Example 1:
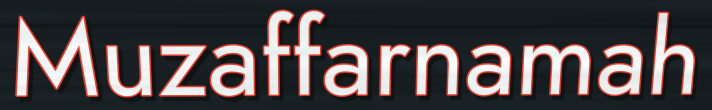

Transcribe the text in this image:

Muzaffarnamah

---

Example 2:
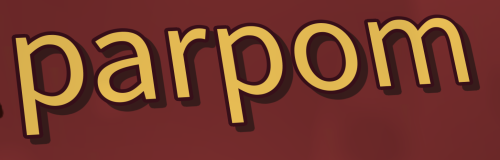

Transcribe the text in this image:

parpom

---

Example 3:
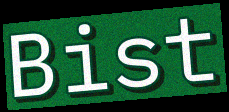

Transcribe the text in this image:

Bist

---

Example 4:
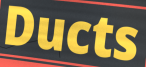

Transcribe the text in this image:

Ducts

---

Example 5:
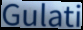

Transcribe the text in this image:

Gulati